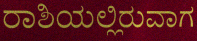
ರಾಶಿಯಲ್ಲಿರುವಾಗ